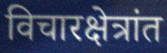
विचारक्षेत्रांत